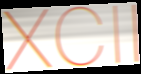
XCII